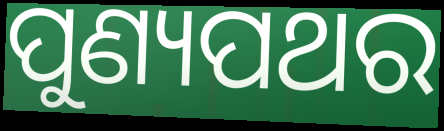
ପୁଣ୍ୟପଥର